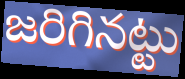
జరిగినట్టు